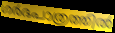
ഗർഭപാത്രത്തിൽ